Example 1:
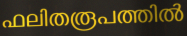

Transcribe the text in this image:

ഫലിതരൂപത്തിൽ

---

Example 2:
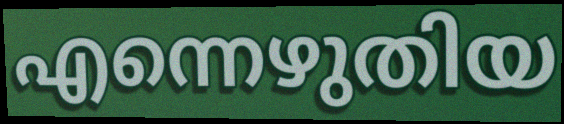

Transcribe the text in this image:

എന്നെഴുതിയ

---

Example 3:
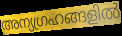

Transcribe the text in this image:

അന്യഗ്രഹങ്ങളിൽ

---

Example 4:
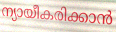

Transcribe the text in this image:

ന്യായീകരിക്കാൻ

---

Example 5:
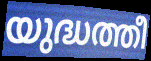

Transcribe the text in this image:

യുദ്ധത്തീ